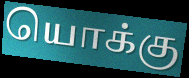
யொக்கு